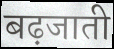
बढ़जाती